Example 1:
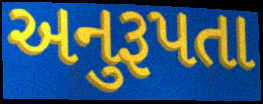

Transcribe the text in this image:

અનુરૂપતા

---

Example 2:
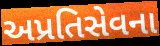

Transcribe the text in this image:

અપ્રતિસેવના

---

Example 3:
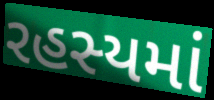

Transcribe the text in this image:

રહસ્યમાં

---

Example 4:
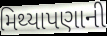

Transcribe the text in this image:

મિથ્યાપણાની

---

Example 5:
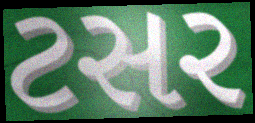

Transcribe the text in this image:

ટસર